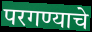
परगण्याचे